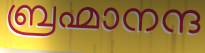
ബ്രഹ്മാനന്ദ